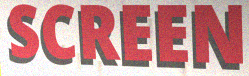
SCREEN